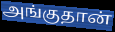
அங்குதான்